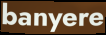
banyere